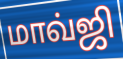
மாவ்ஜி